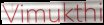
Vimukthi